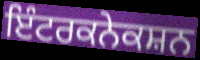
ਇੰਟਰਕਨੇਕਸ਼ਨ